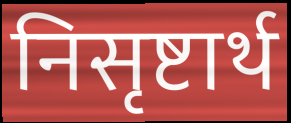
निसृष्टार्थ